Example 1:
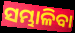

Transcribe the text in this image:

ସମ୍ଭାଳିବା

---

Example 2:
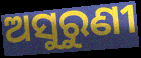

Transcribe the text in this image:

ଅସୁରୁଣୀ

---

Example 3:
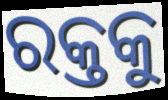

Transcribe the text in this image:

ରକ୍ତକୁ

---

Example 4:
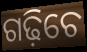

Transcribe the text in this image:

ଗଢ଼ିଚେ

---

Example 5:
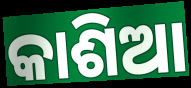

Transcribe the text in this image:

କାଶିଆ